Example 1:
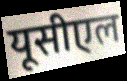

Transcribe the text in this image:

यूसीएल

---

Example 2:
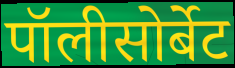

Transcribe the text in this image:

पॉलीसोर्बेट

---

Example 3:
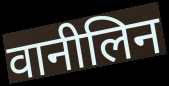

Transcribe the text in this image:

वानीलिन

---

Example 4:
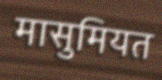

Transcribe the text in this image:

मासुमियत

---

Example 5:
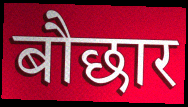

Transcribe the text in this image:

बौछार